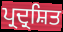
ਪ੍ਰਦ੍ਰਸ਼ਿਤ